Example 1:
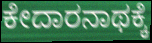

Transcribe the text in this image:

ಕೇದಾರನಾಥಕ್ಕೆ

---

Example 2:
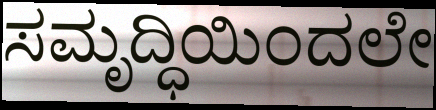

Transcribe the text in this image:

ಸಮೃದ್ಧಿಯಿಂದಲೇ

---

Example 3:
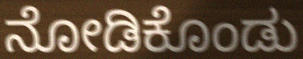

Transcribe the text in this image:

ನೋಡಿಕೊಂಡು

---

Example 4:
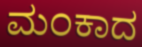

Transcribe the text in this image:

ಮಂಕಾದ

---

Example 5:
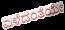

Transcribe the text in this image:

ಎಳೆದಂತೆಯೇ